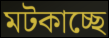
মটকাচ্ছে